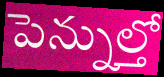
పెన్నుల్తో